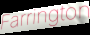
Farrington